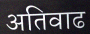
अतिवाढ